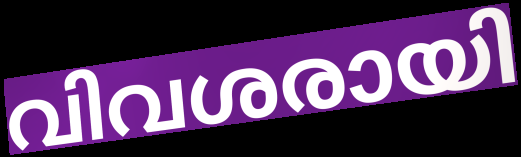
വിവശരായി